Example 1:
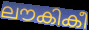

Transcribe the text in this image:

ലൗകികീ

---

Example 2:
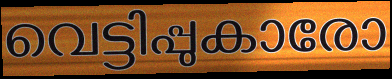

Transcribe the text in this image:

വെട്ടിപ്പുകാരോ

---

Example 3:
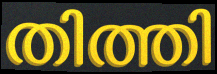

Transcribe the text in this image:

തിത്തി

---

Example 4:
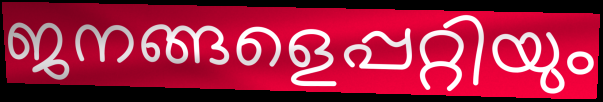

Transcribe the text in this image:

ജനങ്ങളെപ്പറ്റിയും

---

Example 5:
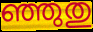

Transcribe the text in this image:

ഞ്ഞുതു